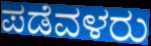
ಪಡೆವಳರು